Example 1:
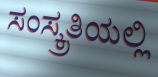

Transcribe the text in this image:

ಸಂಸ್ಕ್ರತಿಯಲ್ಲಿ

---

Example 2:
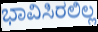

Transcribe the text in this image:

ಭಾವಿಸಿರಲಿಲ್ಲ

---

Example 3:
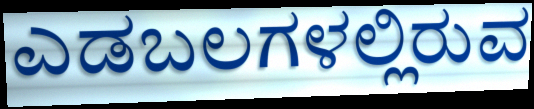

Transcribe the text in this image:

ಎಡಬಲಗಳಲ್ಲಿರುವ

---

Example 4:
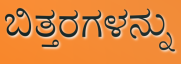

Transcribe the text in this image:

ಬಿತ್ತರಗಳನ್ನು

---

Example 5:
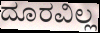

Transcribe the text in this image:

ದೂರವಿಲ್ಲ